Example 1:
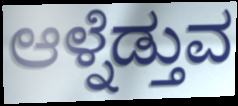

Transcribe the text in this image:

ಆಳ್ನೆಡ್ತುವ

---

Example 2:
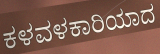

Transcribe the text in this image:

ಕಳವಳಕಾರಿಯಾದ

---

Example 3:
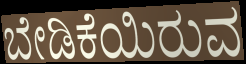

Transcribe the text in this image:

ಬೇಡಿಕೆಯಿರುವ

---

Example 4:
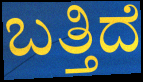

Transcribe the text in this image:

ಬತ್ತಿದೆ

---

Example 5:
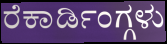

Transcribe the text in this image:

ರೆಕಾರ್ಡಿಂಗ್ಗಳು